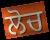
ਲੋਚ